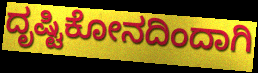
ದೃಷ್ಟಿಕೋನದಿಂದಾಗಿ